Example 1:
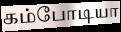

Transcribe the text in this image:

கம்போடியா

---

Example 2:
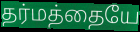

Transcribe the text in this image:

தர்மத்தையே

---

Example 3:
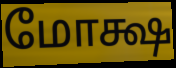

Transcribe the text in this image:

மோக்ஷ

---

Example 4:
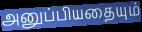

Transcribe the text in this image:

அனுப்பியதையும்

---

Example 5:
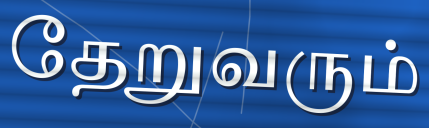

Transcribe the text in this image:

தேறுவரும்